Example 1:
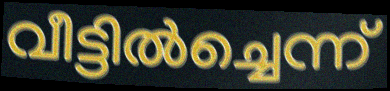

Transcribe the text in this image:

വീട്ടിൽച്ചെന്ന്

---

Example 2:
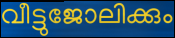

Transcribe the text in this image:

വീട്ടുജോലിക്കും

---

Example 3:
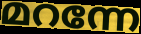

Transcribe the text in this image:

മറന്നേ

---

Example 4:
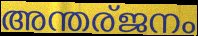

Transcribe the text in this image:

അന്തര്ജനം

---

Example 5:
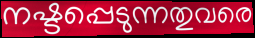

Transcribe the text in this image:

നഷ്ടപ്പെടുന്നതുവരെ